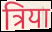
त्रिया